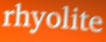
rhyolite